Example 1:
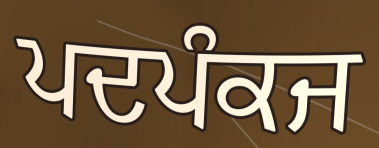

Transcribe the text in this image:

ਪਦਪੰਕਜ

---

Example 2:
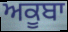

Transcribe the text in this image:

ਅਕੂਬਾ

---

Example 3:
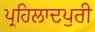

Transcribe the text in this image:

ਪ੍ਰਹਿਲਾਦਪੁਰੀ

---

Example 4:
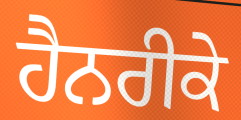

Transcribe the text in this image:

ਹੈਨਰੀਕੇ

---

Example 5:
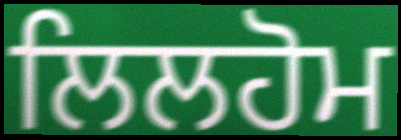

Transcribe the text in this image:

ਲਿਲਹੋਮ